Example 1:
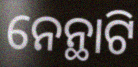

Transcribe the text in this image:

ନେନ୍ଥାଟି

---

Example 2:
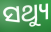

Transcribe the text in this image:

ସଥ୍ୟୁ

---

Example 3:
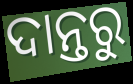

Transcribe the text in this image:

ଦାନ୍ତରୁ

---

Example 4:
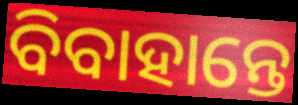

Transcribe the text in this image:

ବିବାହାନ୍ତେ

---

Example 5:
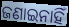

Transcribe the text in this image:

ଜଣାଇନାହିଁ